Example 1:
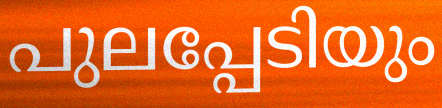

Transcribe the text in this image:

പുലപ്പേടിയും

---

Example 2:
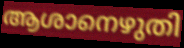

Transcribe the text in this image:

ആശാനെഴുതി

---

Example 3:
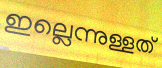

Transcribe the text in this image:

ഇല്ലെന്നുള്ളത്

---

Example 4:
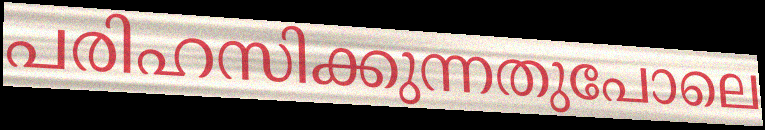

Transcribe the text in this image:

പരിഹസിക്കുന്നതുപോലെ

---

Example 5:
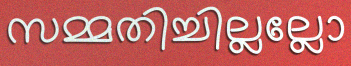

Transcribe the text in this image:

സമ്മതിച്ചില്ലല്ലോ